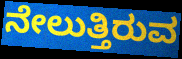
ನೇಲುತ್ತಿರುವ